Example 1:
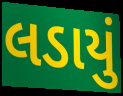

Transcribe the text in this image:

લડાયું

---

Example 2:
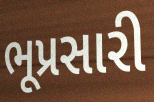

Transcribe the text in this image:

ભૂપ્રસારી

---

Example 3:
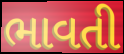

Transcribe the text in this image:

ભાવતી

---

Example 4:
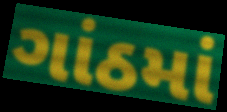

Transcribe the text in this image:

ગાંઠમાં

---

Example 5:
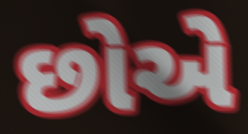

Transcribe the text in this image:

છોએ